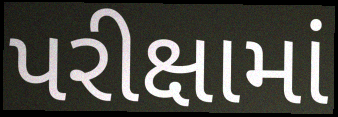
પરીક્ષામાં